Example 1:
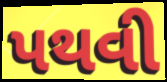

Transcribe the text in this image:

પથવી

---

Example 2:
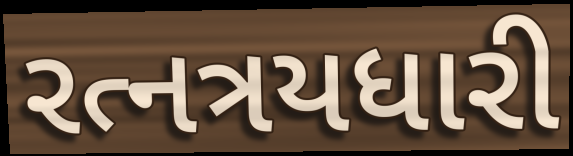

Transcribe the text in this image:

રત્નત્રયધારી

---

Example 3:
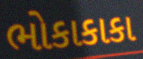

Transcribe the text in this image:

ભોકાકાકા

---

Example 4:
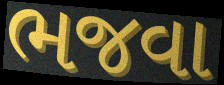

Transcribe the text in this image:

ભજવા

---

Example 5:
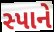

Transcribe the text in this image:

સ્પાને